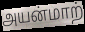
அயன்மாற்